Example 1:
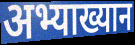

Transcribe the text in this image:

अभ्याख्यान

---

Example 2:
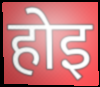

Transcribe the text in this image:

होइ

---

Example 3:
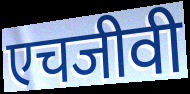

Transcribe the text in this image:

एचजीवी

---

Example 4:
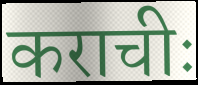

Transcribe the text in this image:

कराचीः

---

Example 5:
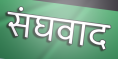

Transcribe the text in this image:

संघवाद